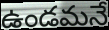
ఉండమనే